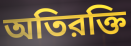
অতিরক্তি